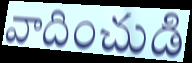
వాదించుడి